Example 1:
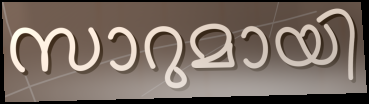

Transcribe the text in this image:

സാറുമായി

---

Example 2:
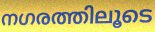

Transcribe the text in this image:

നഗരത്തിലൂടെ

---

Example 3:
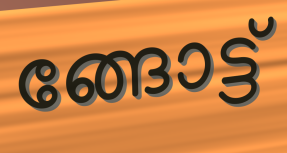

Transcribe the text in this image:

ങ്ങോട്ട്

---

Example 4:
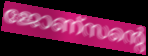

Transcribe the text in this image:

ജോണ്സന്റെ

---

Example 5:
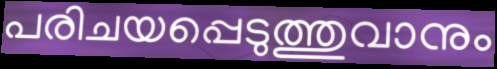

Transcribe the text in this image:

പരിചയപ്പെടുത്തുവാനും